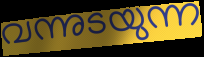
വന്നുടയുന്ന